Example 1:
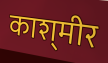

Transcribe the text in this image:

काश्मीर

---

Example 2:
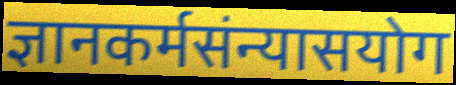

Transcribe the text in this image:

ज्ञानकर्मसंन्यासयोग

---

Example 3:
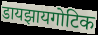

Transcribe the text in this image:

डायझायगोटिक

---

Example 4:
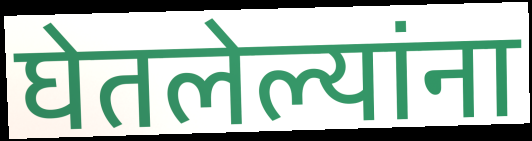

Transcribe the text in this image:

घेतलेल्यांना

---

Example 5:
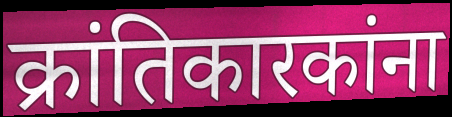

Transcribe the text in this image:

क्रांतिकारकांना